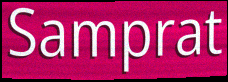
Samprat